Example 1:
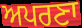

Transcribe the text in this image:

ਅਪਰਣਾ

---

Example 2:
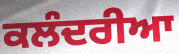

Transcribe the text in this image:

ਕਲੰਦਰੀਆ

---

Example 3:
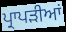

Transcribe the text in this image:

ਪ੍ਰਾਪੜੀਆਂ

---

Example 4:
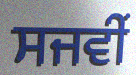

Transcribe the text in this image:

ਸਜਵੀਂ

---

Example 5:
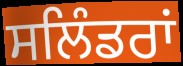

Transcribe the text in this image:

ਸਲਿੰਡਰਾਂ